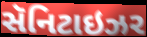
સૅનિટાઇઝર